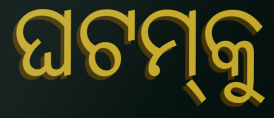
ଘଟମ୍‌କୁ